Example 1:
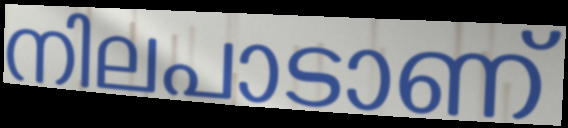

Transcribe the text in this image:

നിലപാടാണ്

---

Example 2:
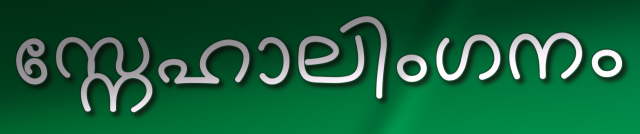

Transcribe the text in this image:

സ്നേഹാലിംഗനം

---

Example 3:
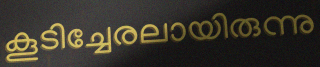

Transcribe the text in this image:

കൂടിച്ചേരലായിരുന്നു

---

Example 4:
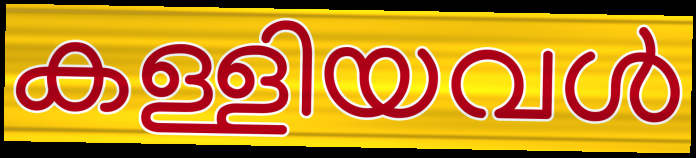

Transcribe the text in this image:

കള്ളിയവൾ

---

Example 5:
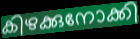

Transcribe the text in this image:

കിഴക്കുനോക്കി